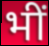
भीं